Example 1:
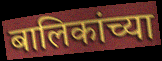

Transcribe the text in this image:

बालिकांच्या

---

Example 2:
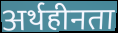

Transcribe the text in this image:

अर्थहीनता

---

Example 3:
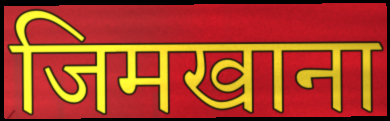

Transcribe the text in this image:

जिमखाना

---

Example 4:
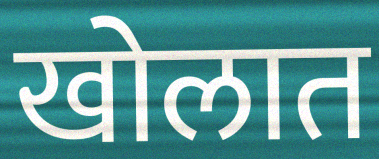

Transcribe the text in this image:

खोलात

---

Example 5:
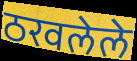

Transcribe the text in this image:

ठरवलेले